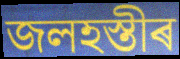
জলহস্তীৰ